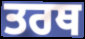
ਤਰਥ